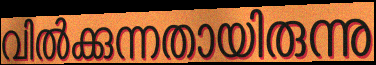
വിൽക്കുന്നതായിരുന്നു